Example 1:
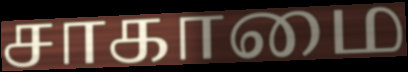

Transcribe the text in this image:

சாகாமை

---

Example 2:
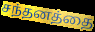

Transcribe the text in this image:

சந்தனத்தை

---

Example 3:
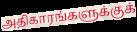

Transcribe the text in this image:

அதிகாரங்களுக்குக்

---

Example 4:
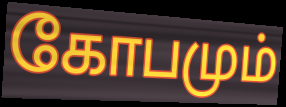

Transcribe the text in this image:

கோபமும்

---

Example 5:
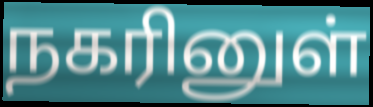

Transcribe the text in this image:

நகரினுள்